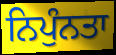
ਨਿਪੁੰਨਤਾ